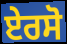
ਏਰਸੋ